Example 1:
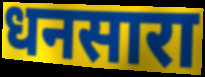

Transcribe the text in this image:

धनसारा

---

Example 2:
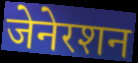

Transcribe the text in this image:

जेनेरशन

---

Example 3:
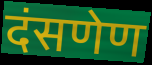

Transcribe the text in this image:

दंसणेण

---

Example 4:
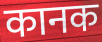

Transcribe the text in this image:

कानक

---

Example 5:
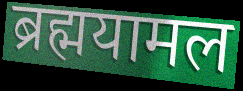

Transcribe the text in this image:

ब्रह्मयामल